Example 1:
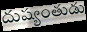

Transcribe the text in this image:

దుష్యంతుడు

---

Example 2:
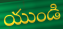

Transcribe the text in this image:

యుండి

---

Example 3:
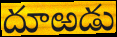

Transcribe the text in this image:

దూఱడు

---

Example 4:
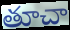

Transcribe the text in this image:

తూచా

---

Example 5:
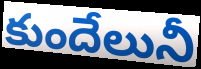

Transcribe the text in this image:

కుందేలునీ